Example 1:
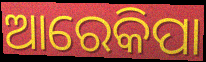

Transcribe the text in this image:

ଆରେକିପା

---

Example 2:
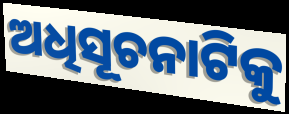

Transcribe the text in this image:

ଅଧିସୂଚନାଟିକୁ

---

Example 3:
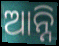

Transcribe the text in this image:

ଆନ୍ନି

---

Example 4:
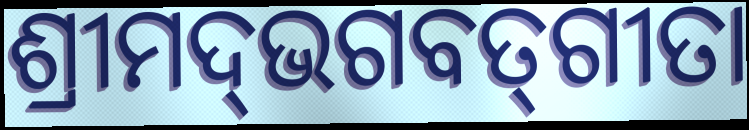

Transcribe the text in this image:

ଶ୍ରୀମଦ୍‌ଭଗବତ୍‌ଗୀତା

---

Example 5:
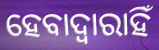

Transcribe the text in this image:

ହେବାଦ୍ଵାରାହିଁ